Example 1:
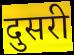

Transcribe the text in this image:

दुसरी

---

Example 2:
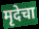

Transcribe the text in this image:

मृदेचा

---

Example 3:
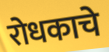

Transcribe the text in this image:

रोधकाचे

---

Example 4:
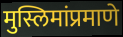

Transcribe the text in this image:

मुस्लिमांप्रमाणे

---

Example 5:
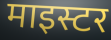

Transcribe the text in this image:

माइस्टर